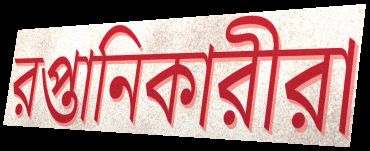
রপ্তানিকারীরা